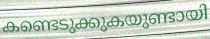
കണ്ടെടുക്കുകയുണ്ടായി